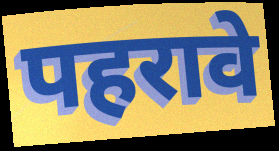
पहरावे